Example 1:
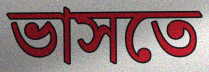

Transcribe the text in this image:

ভাসতে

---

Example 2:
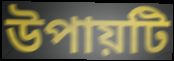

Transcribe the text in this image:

উপায়টি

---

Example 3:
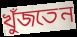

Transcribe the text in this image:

খুঁজতেন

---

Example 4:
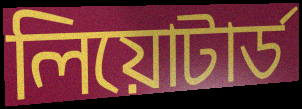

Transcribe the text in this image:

লিয়োটার্ড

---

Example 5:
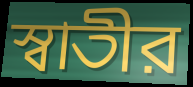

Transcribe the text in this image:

স্বাতীর